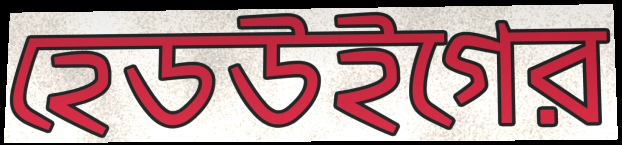
হেডউইগের